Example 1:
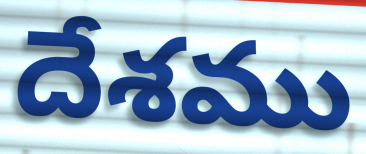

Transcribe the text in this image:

దేశము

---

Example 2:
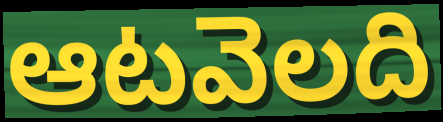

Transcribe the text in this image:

ఆటవెలది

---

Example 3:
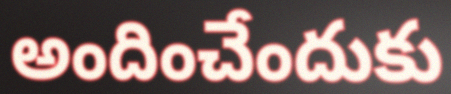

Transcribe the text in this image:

అందించేందుకు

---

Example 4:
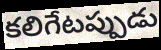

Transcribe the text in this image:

కలిగేటప్పుడు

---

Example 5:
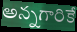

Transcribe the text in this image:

అన్నగారికే